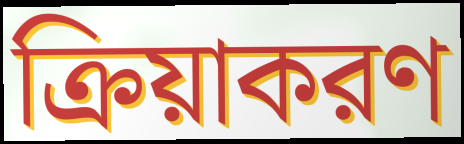
ক্রিয়াকরণ